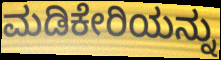
ಮಡಿಕೇರಿಯನ್ನು